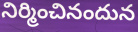
నిర్మించినందున